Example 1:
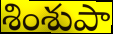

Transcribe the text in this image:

శింశుపా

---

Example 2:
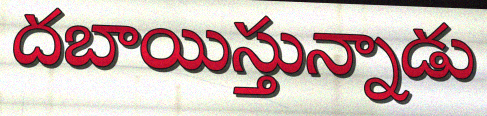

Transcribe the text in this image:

దబాయిస్తున్నాడు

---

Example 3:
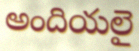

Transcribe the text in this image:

అందియలై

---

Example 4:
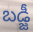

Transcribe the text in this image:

బడ్జీ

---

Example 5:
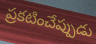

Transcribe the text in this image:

ప్రకటించేప్పుడు